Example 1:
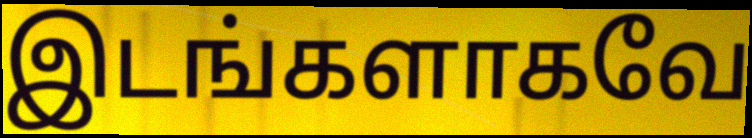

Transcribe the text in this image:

இடங்களாகவே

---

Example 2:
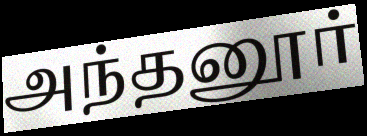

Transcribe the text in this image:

அந்தனூர்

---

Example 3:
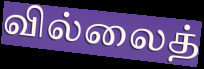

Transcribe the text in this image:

வில்லைத்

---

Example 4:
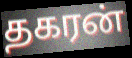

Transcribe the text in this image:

தகரன்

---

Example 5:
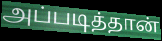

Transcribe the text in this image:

அப்படித்தான்